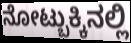
ನೋಟ್ಬುಕ್ಕಿನಲ್ಲಿ